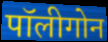
पॉलीगोन